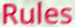
Rules